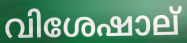
വിശേഷാല്